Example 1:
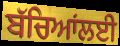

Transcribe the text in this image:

ਬੱਚਿਆਂਲਈ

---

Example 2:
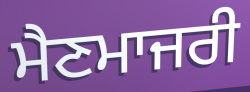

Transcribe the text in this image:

ਮੈਣਮਾਜਰੀ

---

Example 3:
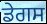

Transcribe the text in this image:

ਡੇਗਸ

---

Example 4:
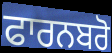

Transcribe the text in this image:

ਫਾਰਨਬਰੋ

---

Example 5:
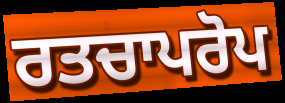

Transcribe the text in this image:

ਰਤਚਾਪਰੋਪ